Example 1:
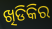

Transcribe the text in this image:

ଖିଡିକିର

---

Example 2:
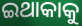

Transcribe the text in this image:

ଇଥାକାକୁ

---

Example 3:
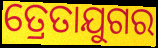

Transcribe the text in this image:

ତ୍ରେତାଯୁଗର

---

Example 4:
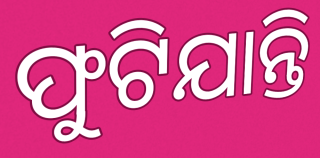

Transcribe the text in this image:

ଫୁଟିଯାନ୍ତି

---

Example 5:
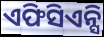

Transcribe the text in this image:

ଏଫିସିଏନ୍ସି